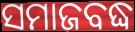
ସମାଜବଦ୍ଧ